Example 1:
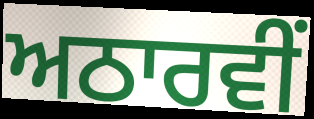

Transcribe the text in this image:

ਅਠਾਰਵੀਂ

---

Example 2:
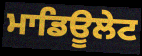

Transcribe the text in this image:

ਮਾਡਿਊਲੇਟ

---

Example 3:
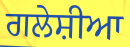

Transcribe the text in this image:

ਗਲੇਸ਼ੀਆ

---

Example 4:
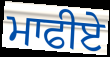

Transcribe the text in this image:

ਮਾਫੀਏ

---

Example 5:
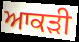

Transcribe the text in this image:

ਆਕੜੀ